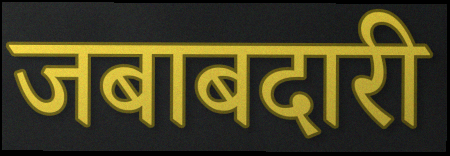
जबाबदारी